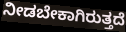
ನೀಡಬೇಕಾಗಿರುತ್ತದೆ